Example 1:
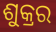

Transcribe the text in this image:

ଶୁକ୍ରର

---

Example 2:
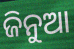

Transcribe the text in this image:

ଜିନୁଆ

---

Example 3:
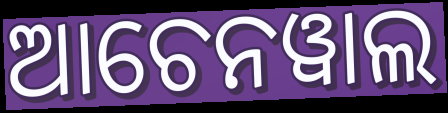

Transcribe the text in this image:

ଆଚେନୱାଲ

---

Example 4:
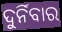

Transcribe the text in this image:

ଦୁର୍ନିବାର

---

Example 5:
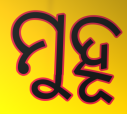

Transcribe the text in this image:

ମୁହୂ